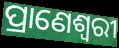
ପ୍ରାଣେଶ୍ୱରୀ